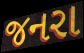
જનરા